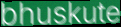
bhuskute